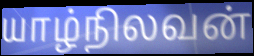
யாழ்நிலவன்